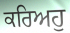
ਕਰਿਅਹੁ